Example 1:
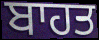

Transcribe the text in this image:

ਬਾਹਤ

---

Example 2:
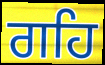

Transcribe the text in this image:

ਗਹਿ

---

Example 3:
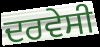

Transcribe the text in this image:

ਦਰਵੇਸੀ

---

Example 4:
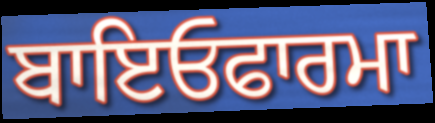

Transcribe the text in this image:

ਬਾਇਓਫਾਰਮਾ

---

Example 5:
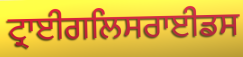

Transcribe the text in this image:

ਟ੍ਰਾਈਗਲਿਸਰਾਈਡਸ